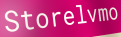
Storelvmo